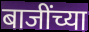
बाजींच्या